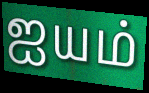
ஐயம்